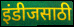
इंडीजसाठी